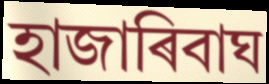
হাজাৰিবাঘ